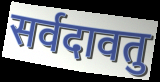
सर्वदावतु